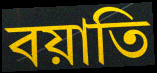
বয়াতি